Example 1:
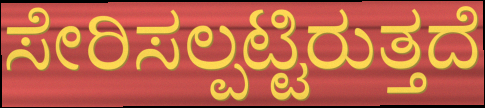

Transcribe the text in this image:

ಸೇರಿಸಲ್ಪಟ್ಟಿರುತ್ತದೆ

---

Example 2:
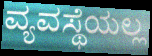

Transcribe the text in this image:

ವ್ಯವಸ್ಥೆಯಲ್ಲ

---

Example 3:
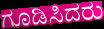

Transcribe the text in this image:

ಗೂಡಿಸಿದರು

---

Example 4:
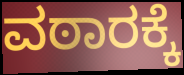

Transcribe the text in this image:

ವಠಾರಕ್ಕೆ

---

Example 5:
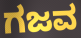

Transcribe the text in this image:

ಗಜವ